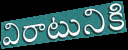
విరాటునికి